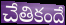
చేతికందే